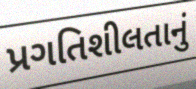
પ્રગતિશીલતાનું